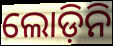
ଲୋଡ଼ିନି